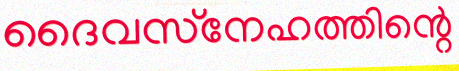
ദൈവസ്‌നേഹത്തിന്റെ